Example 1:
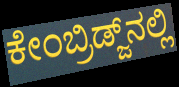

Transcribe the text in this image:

ಕೇಂಬ್ರಿಡ್ಜ್‌ನಲ್ಲಿ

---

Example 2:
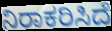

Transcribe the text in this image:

ನಿರಾಕರಿಸಿದೆ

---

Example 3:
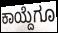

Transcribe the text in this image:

ಕಾಯ್ದೆಗೂ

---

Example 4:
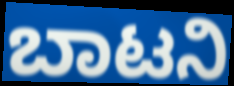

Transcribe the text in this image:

ಬಾಟನಿ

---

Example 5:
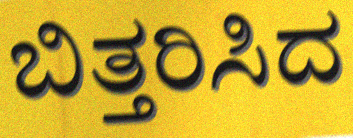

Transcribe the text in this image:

ಬಿತ್ತರಿಸಿದ